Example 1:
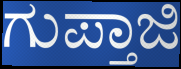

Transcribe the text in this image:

ಗುಪ್ತಾಜಿ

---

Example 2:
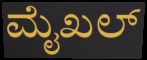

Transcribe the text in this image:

ಮೈಖಲ್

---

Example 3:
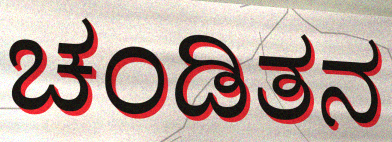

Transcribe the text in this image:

ಚಂಡಿತನ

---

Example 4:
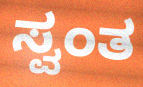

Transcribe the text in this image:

ಸ್ವಂತ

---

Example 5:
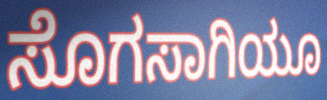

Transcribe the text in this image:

ಸೊಗಸಾಗಿಯೂ